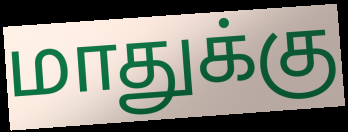
மாதுக்கு